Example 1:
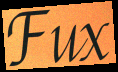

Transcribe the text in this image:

Fux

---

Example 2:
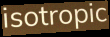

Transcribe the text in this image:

isotropic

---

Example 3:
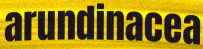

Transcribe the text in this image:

arundinacea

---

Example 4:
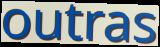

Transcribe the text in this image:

outras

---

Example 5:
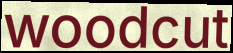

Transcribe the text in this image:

woodcut